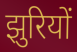
झुरियों